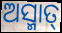
ଅସ୍ମାତ୍